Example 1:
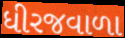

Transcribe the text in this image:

ધીરજવાળા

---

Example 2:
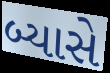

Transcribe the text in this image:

બ્યાસે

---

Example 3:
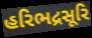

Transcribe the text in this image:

હરિભદ્રસૂરિ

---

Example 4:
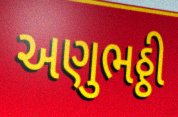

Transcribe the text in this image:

અણુભઠ્ઠી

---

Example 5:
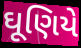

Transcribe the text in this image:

ઘૂણિયે